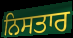
ਨਿਸਤਾਰ